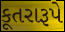
કૂતરારૂપે